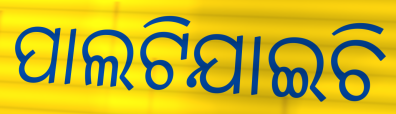
ପାଲଟିଯାଇଚି